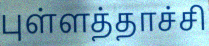
புள்ளத்தாச்சி